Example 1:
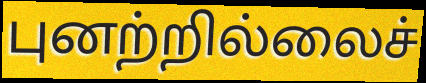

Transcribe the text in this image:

புனற்றில்லைச்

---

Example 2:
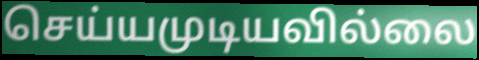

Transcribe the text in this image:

செய்யமுடியவில்லை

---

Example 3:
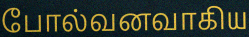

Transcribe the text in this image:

போல்வனவாகிய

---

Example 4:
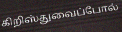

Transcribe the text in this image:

கிறிஸ்துவைப்போல்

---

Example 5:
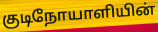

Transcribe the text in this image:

குடிநோயாளியின்